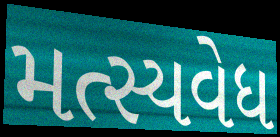
મત્સ્યવેધ